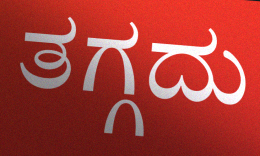
ತಗ್ಗದು